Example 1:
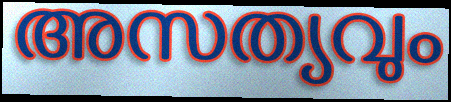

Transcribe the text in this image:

അസത്യവും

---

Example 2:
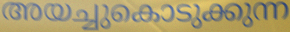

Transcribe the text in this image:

അയച്ചുകൊടുക്കുന്ന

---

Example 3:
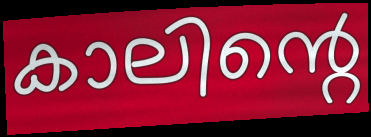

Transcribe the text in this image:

കാലിന്റെ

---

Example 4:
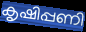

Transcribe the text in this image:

കൃഷിപ്പണി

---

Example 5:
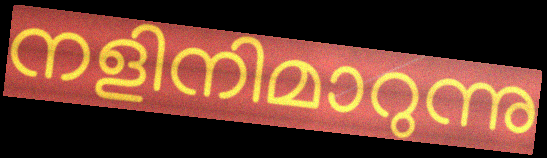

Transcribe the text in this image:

നളിനിമാറുന്നു